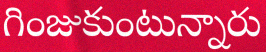
గింజుకుంటున్నారు